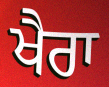
ਖੈਰਾ